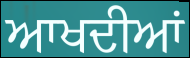
ਆਖਦੀਆਂ